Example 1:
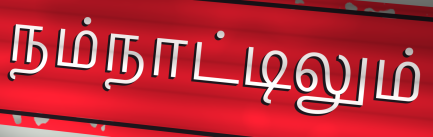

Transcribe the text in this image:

நம்நாட்டிலும்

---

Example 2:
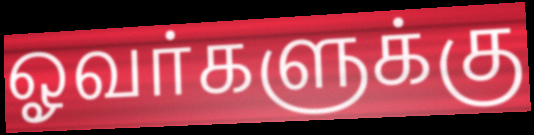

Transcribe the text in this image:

ஓவர்களுக்கு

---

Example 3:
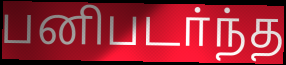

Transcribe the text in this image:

பனிபடர்ந்த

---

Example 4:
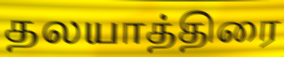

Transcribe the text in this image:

தலயாத்திரை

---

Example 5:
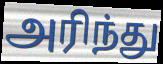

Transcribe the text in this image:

அரிந்து